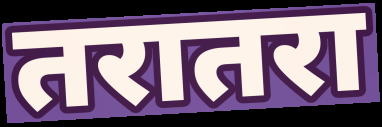
तरातरा